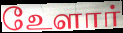
உேளார்